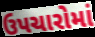
ઉપચારોમાં